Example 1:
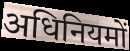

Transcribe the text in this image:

अधिनियमों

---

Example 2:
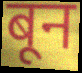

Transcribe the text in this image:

बून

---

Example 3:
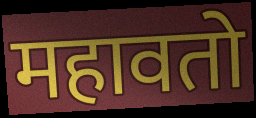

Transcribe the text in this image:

महावतो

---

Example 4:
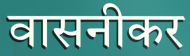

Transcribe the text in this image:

वासनीकर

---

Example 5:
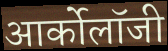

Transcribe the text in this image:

आर्कोलॉजी